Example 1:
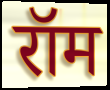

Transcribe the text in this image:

रॉम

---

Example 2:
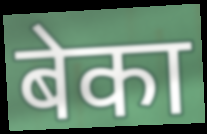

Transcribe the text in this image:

बेका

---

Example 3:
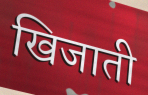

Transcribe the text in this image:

खिजाती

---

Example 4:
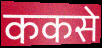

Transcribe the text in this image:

ककसे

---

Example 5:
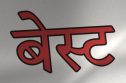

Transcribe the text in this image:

बेस्‍ट